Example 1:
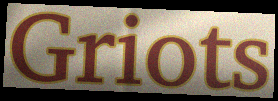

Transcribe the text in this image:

Griots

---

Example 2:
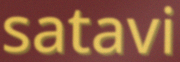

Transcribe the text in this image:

satavi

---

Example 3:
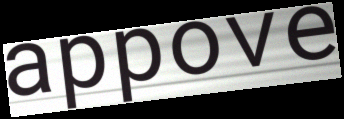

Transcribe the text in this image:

appove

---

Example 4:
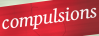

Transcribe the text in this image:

compulsions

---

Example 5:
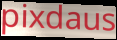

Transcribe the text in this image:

pixdaus